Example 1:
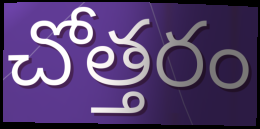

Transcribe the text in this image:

చోత్తరం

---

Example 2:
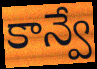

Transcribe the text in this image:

కాన్వే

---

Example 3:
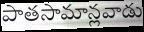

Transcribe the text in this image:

పాతసామాన్లవాడు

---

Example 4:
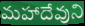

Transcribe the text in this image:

మహాదేవుని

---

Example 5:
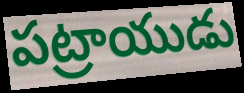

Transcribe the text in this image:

పట్రాయుడు